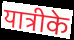
यात्रीके